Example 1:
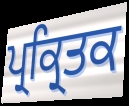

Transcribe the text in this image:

ਪ੍ਰਕ੍ਰਿਤਕ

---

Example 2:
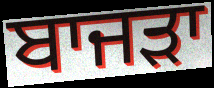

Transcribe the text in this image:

ਬਾਜਡ਼ਾ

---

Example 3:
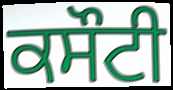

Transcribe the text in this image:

ਕਸੌਟੀ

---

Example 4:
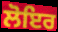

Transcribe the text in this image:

ਲੋਇਰ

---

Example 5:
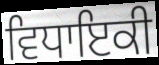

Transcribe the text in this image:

ਵਿਧਾਇਕੀ